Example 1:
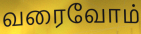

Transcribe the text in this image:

வரைவோம்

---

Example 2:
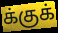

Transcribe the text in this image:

க்குக்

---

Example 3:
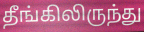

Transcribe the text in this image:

தீங்கிலிருந்து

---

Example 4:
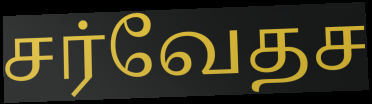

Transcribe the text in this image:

சர்வேதச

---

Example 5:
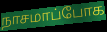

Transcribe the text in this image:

நாசமாப்போக